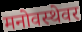
मनोवस्थेवर